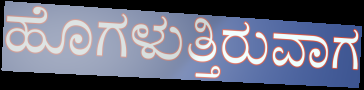
ಹೊಗಳುತ್ತಿರುವಾಗ